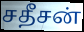
சதீசன்